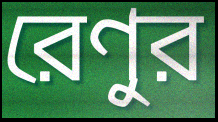
রেণুর